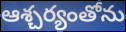
ఆశ్చర్యంతోను